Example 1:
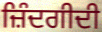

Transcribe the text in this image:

ਜ਼ਿੰਦਗੀਦੀ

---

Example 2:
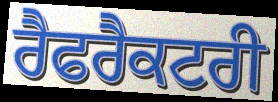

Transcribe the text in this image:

ਰੈਫਰੈਕਟਰੀ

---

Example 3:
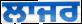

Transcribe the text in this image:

ਲਾਜਰ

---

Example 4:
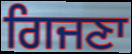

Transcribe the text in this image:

ਗਿਜਣਾ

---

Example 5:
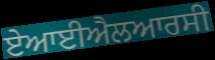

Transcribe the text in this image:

ਏਆਈਐਲਆਰਸੀ